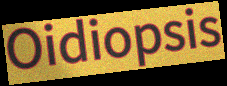
Oidiopsis